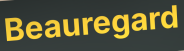
Beauregard